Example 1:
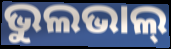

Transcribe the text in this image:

ଭୁଲଭାଲ୍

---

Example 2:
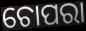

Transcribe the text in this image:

ଚୋପରା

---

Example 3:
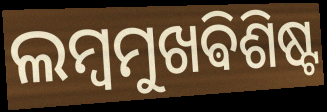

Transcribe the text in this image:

ଲମ୍ବମୁଖଵିଶିଷ୍ଟ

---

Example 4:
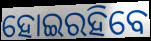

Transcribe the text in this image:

ହୋଇରହିବେ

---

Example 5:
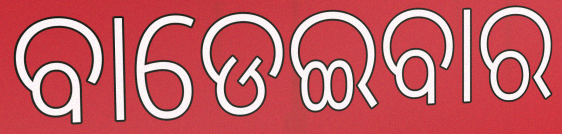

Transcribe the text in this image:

ବାଡେଇବାର